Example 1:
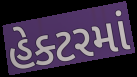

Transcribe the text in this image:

હેક્ટરમાં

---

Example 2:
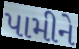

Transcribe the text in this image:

પામીને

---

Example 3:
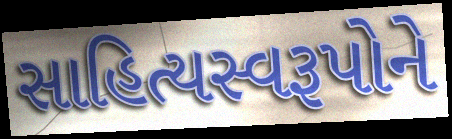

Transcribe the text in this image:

સાહિત્યસ્વરૂપોને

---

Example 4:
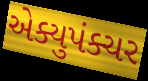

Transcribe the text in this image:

એક્યુપંક્ચર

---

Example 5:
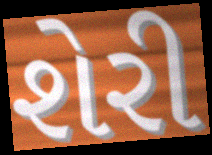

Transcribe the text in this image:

શેરી